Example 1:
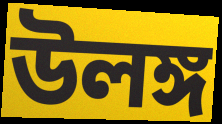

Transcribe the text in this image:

উলঙ্গ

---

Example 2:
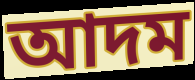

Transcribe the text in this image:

আদম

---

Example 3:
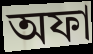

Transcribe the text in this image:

অফা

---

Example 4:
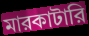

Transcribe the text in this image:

মারকাটারি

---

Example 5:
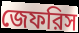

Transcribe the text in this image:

জেফরিস